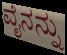
ವೈನನ್ನು